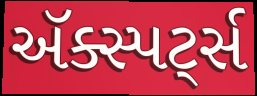
ઍક્સ્પર્ટ્સ